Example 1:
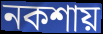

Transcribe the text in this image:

নকশায়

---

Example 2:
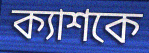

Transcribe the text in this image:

ক্যাশকে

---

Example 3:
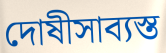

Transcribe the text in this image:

দোষীসাব্যস্ত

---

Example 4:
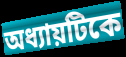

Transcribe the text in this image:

অধ্যায়টিকে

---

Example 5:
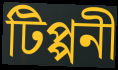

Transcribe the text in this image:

টিপ্পনী